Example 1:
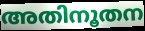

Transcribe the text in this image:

അതിനൂതന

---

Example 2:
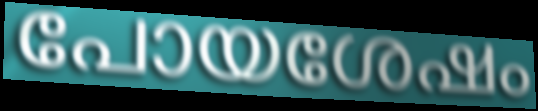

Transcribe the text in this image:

പോയശേഷം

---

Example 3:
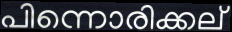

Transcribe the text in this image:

പിന്നൊരിക്കല്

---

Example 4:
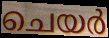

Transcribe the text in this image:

ചെയർ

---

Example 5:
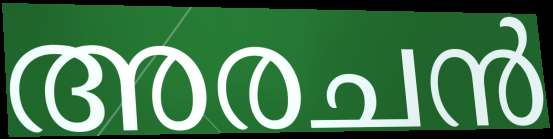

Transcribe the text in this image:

അരചൻ